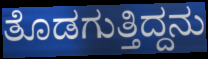
ತೊಡಗುತ್ತಿದ್ದನು